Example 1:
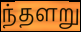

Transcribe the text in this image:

ந்தளறு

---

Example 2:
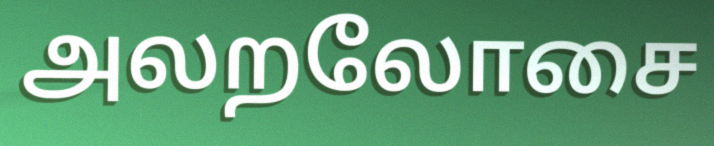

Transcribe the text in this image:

அலறலோசை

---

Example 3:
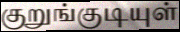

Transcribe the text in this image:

குறுங்குடியுள்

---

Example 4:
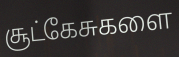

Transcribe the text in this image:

சூட்கேசுகளை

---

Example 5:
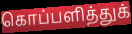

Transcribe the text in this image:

கொப்பளித்துக்